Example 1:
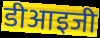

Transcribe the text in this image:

डीआइजी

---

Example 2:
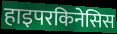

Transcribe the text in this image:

हाइपरकिनेसिस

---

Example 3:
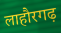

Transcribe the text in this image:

लाहौरगढ़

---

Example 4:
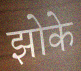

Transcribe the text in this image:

झोके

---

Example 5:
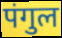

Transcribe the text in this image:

पंगुल